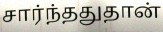
சார்ந்ததுதான்